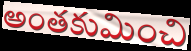
అంతకుమించి